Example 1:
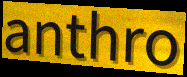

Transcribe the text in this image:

anthro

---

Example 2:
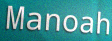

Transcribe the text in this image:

Manoah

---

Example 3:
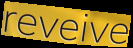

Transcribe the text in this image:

reveive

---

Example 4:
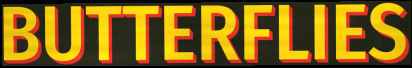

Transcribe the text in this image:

BUTTERFLIES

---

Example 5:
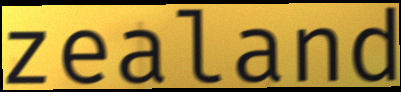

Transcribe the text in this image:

zealand